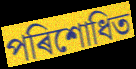
পৰিশোধিত